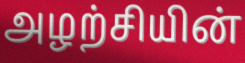
அழற்சியின்